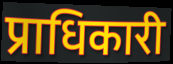
प्राधिकारी